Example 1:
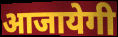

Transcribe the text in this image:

आजायेगी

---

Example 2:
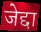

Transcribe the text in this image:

जेद्दा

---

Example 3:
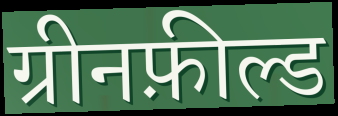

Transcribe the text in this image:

ग्रीनफ़ील्ड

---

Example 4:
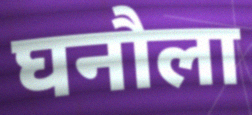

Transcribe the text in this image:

घनौला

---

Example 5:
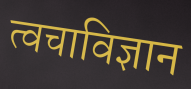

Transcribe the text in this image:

त्वचाविज्ञान